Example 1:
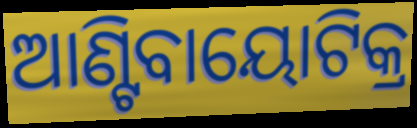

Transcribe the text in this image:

ଆଣ୍ଟିବାୟୋଟିକ୍ର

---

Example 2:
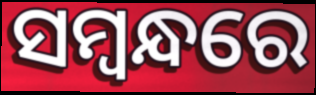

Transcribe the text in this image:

ସମ୍ୱନ୍ଧରେ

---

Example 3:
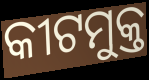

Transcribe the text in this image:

କୀଟମୁକ୍ତ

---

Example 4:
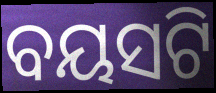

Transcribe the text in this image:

ବୟସଟି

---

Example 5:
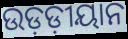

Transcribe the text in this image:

ଉଡ଼ଡ଼ୀୟାନ